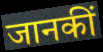
जानकीं